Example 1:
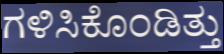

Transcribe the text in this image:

ಗಳಿಸಿಕೊಂಡಿತ್ತು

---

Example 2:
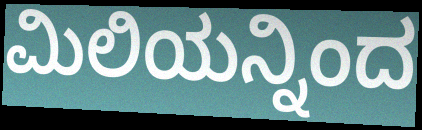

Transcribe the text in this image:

ಮಿಲಿಯನ್ನಿಂದ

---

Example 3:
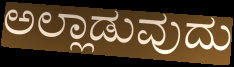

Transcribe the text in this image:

ಅಲ್ಲಾಡುವುದು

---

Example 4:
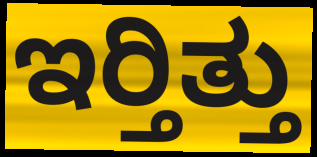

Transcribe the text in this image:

ಇರ್‍ತಿತ್ತು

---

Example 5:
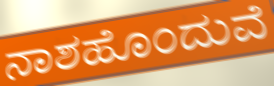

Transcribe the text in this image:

ನಾಶಹೊಂದುವೆ